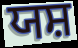
ਯਸ਼